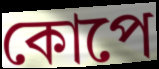
কোপে